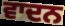
ਵਾਦਨ